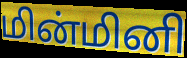
மின்மினி